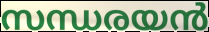
സന്ധരയൻ